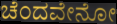
ಚೆಂದವೇನೋ